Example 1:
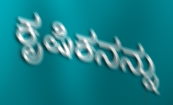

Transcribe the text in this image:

ಕೃಷಿಕನನ್ನು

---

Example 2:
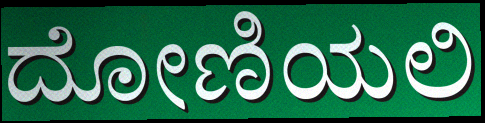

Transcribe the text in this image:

ದೋಣಿಯಲಿ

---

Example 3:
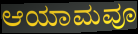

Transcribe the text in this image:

ಆಯಾಮವೂ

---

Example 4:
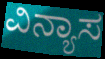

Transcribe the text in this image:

ವಿನ್ಯಾಸ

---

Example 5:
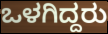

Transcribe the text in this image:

ಒಳಗಿದ್ದರು